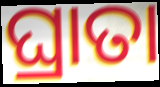
ଘ୍ରାତା